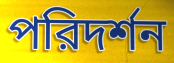
পরিদর্শন